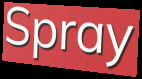
Spray